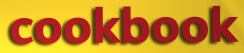
cookbook